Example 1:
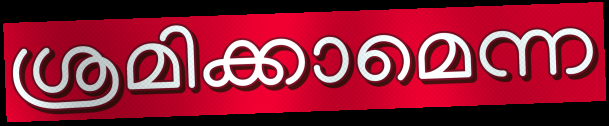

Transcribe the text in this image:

ശ്രമിക്കാമെന്ന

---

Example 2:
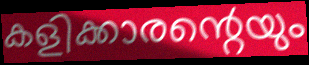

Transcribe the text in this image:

കളിക്കാരന്റെയും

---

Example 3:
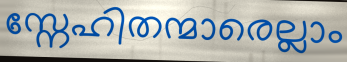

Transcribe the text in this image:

സ്നേഹിതന്മാരെല്ലാം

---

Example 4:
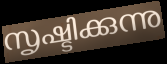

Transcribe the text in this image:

സൃഷ്ടിക്കുന്നു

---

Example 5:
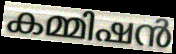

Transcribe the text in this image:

കമ്മിഷൻ